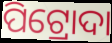
ପିଟ୍ରୋଦା